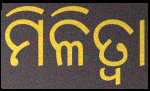
ମିଳିତ୍ଵା